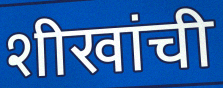
शीखांची